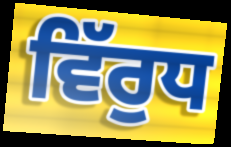
ਵਿੱਰੁਧ